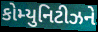
કોમ્યુનિટીઝને